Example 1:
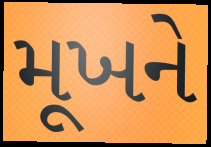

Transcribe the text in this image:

મૂખને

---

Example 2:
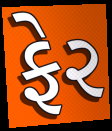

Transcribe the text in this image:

ફેર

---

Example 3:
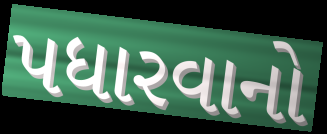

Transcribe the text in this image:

પધારવાનો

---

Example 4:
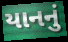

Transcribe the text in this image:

યાનનું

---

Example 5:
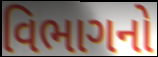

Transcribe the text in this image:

વિભાગનો